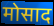
मोसाद